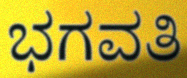
ಭಗವತಿ